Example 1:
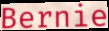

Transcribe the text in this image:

Bernie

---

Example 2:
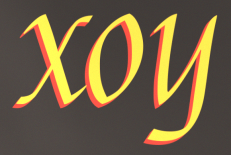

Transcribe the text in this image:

xoy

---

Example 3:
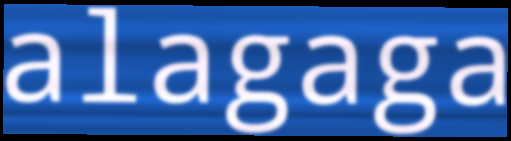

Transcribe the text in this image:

alagaga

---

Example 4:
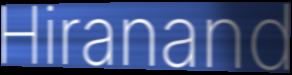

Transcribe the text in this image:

Hiranand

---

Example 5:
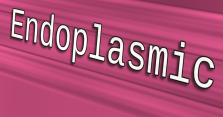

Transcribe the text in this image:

Endoplasmic